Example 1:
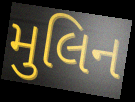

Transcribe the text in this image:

મુલિન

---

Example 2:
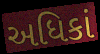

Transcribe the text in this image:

અધિકાં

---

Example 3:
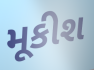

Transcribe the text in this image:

મૂકીશ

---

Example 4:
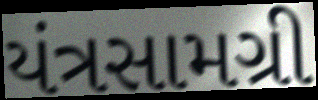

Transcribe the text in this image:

યંત્રસામગ્રી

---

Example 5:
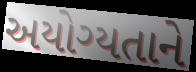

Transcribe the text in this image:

અયોગ્યતાને